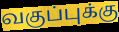
வகுப்புக்கு